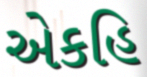
એકહિ